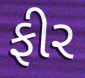
ફીર